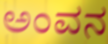
ಅಂವನ